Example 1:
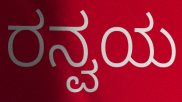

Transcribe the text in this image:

ರನ್ವಯ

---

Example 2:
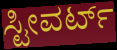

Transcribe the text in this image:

ಸ್ಟೀವರ್ಟ್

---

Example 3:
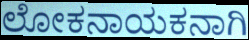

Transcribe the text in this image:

ಲೋಕನಾಯಕನಾಗಿ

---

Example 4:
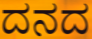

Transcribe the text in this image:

ದನದ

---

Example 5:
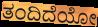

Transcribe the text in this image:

ತಂದಿದೆಯೋ